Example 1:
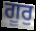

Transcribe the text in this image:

ਗੂਰੁ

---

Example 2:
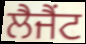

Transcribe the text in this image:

ਲੈਜੈਂਟ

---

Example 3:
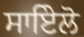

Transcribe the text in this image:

ਸਾਇੇਲੋ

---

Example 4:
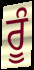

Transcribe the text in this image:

ਰੂੰ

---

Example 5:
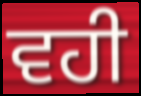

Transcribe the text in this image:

ਵਹੀ